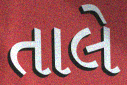
તાલે